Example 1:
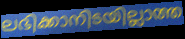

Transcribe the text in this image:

ലഭിക്കാനിടയില്ലാത്ത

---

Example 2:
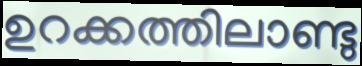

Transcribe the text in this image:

ഉറക്കത്തിലാണ്ടു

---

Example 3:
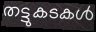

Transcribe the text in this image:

തട്ടുകടകൾ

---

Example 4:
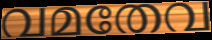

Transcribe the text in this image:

വമതേവ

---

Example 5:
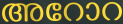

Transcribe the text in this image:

അറോറ